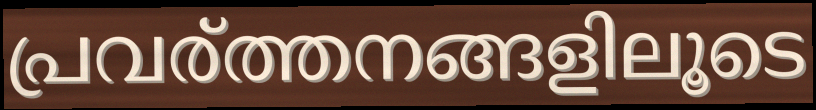
പ്രവര്ത്തനങ്ങളിലൂടെ